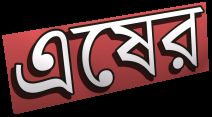
এষের